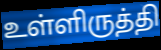
உள்ளிருத்தி